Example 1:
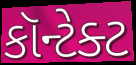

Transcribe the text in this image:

કૉન્ટેક્ટ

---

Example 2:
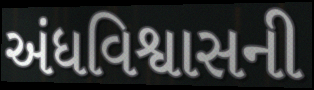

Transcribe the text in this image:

અંધવિશ્વાસની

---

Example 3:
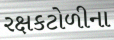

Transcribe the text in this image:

રક્ષકટોળીના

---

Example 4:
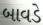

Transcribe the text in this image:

બાવડે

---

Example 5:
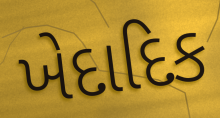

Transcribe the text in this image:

ખેદાદિક